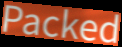
Packed